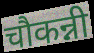
चौकन्नी